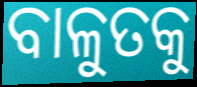
ବାଳୁତକୁ